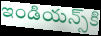
ఇండియన్స్‌కి